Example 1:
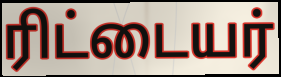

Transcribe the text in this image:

ரிட்டையர்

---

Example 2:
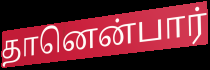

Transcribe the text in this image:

தானென்பார்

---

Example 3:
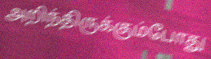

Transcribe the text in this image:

அறிந்திருக்கும்போது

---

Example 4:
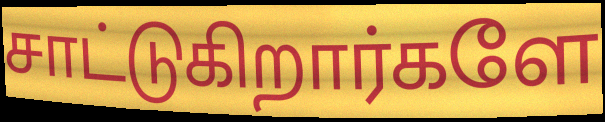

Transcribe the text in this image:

சாட்டுகிறார்களே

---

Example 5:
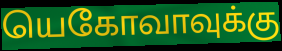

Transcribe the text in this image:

யெகோவாவுக்கு